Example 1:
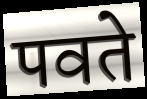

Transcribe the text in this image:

पवते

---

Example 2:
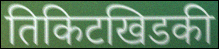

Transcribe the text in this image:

तिकिटखिडकी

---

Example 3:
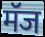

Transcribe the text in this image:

मॅज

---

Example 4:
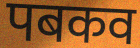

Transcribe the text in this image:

पबकव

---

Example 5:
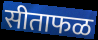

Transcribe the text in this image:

सीताफळ